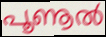
പൂണൂൽ